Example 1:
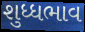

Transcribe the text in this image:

શુધ્ધભાવ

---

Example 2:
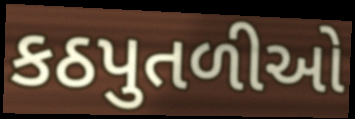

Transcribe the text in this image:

કઠપુતળીઓ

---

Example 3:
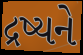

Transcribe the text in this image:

દ્રષ્યને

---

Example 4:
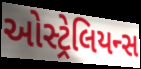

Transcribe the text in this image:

ઓસ્ટ્રેલિયન્સ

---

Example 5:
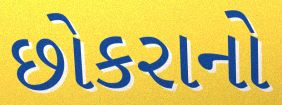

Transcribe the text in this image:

છોકરાનો